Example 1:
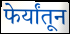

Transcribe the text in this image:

फेर्यांतून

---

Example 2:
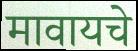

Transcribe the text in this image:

मावायचे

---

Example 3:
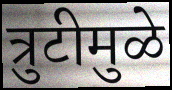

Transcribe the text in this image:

त्रुटीमुळे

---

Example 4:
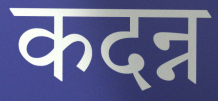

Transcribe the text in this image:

कदन्न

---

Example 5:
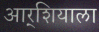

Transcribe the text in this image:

आर्शियाला